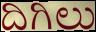
ದಿಗಿಲು